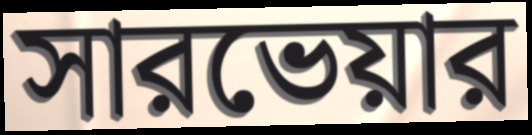
সারভেয়ার